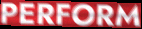
PERFORM